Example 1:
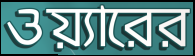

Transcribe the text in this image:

ওয়্যারের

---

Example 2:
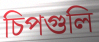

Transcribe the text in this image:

চিপগুলি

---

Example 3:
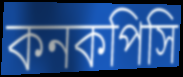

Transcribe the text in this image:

কনকপিসি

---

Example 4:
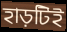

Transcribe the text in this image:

হাড়টিই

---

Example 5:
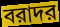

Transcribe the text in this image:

বরাদর